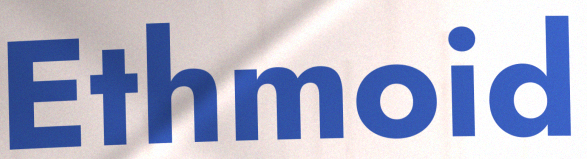
Ethmoid